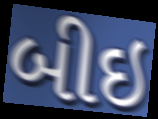
બીઇ